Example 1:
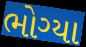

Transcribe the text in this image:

ભોગ્યા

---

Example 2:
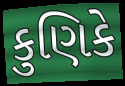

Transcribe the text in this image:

કુણિકે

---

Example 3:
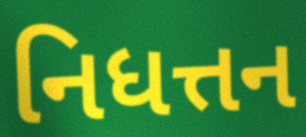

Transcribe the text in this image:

નિધત્તન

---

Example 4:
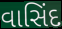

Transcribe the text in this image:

વાસિંદ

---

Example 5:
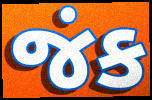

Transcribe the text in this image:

જંક